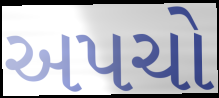
અપચો